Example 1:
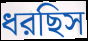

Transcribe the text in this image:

ধরছিস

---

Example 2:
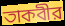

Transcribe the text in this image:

তাকবীর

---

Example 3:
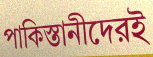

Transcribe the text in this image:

পাকিস্তানীদেরই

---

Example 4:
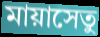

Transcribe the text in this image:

মায়াসেতু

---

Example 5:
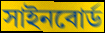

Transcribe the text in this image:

সাইনবোর্ড